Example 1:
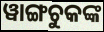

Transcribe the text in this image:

ୱାଙ୍ଗଚୁକଙ୍କ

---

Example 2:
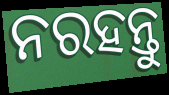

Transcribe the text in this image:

ନରହନ୍ତୁ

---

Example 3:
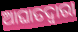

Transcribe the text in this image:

ଆଘାତଦ୍ୱାରା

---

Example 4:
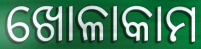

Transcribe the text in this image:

ଖୋଳାକାମ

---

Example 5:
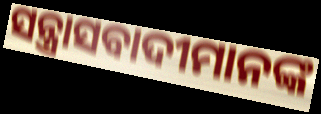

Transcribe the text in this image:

ସନ୍ତ୍ରାସବାଦୀମାନଙ୍କ